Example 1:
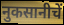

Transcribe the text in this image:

नुकसानीचें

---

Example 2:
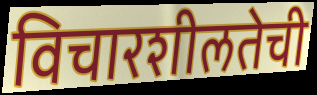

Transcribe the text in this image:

विचारशीलतेची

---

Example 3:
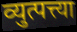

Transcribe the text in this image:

व्युत्पत्त्या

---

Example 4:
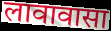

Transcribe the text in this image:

लावावासा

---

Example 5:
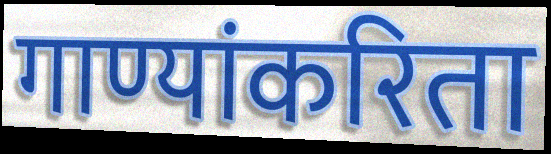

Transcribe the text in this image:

गाण्यांकरिता